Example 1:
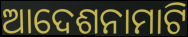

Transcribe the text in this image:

ଆଦେଶନାମାଟି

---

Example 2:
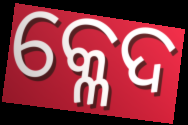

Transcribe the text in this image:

କ୍ଳେଦ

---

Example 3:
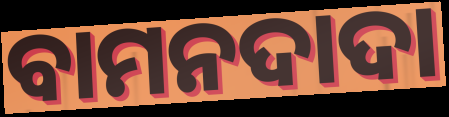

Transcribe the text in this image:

ବାମନଦାଦା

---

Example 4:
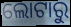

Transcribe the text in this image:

ଲୋଟାରୁ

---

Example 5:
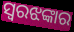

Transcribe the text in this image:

ସ୍ୱରଝଙ୍କାର